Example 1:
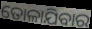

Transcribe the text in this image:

ତୋଳାଯିବାର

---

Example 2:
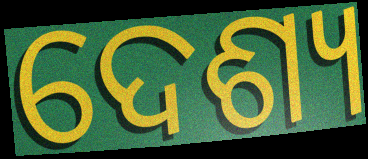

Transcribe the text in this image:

ଦେଶ୍ୟ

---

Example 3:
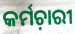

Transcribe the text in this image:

କର୍ମଚ଼ାରୀ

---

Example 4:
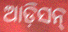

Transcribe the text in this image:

ଆଡ଼ିସନ୍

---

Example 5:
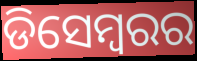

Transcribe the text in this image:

ଡିସେମ୍ୱରର